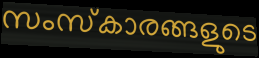
സംസ്കാരങ്ങളുടെ